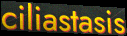
ciliastasis